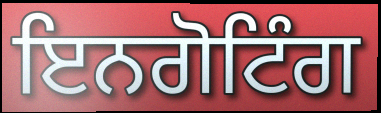
ਇਨਗੋਟਿੰਗ